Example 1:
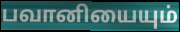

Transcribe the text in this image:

பவானியையும்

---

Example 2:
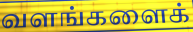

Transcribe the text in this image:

வளங்களைக்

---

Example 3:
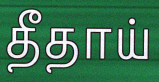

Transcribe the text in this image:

தீதாய்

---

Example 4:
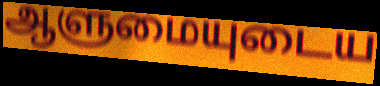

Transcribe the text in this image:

ஆளுமையுடைய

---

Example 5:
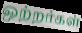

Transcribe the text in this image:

ஒற்றர்கள்